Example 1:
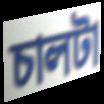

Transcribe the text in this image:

চালটা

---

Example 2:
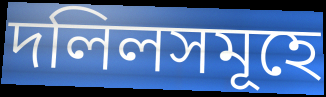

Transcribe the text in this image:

দলিলসমূহে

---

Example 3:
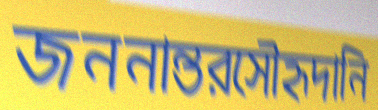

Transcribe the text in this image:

জননান্তরসৌহৃদানি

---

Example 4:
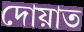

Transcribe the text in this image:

দোয়াত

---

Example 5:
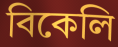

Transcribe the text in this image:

বিকেলি